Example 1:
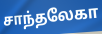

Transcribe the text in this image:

சாந்தலேகா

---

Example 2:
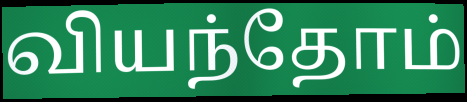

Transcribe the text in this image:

வியந்தோம்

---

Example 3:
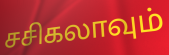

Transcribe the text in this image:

சசிகலாவும்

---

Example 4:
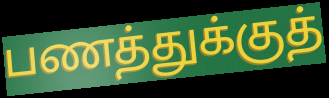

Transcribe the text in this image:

பணத்துக்குத்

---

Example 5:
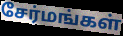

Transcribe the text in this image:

சேர்மங்கள்